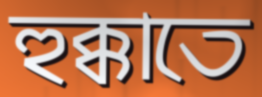
হুক্কাতে